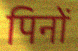
पिनों